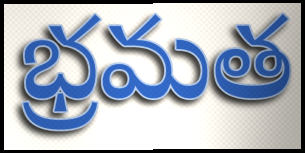
భ్రమత